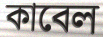
কাবেল